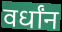
वर्धांन